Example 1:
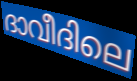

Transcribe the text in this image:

ദാവീദിലെ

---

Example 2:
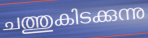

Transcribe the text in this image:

ചത്തുകിടക്കുന്നു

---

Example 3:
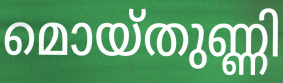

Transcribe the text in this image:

മൊയ്തുണ്ണി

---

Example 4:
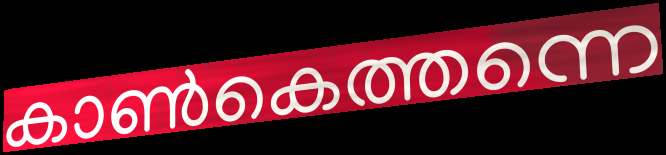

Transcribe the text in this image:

കാൺകെത്തന്നെ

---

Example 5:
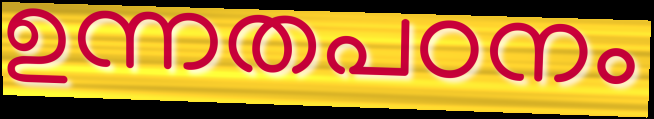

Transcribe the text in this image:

ഉന്നതപഠനം